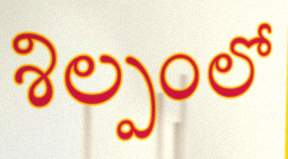
శిల్పంలో